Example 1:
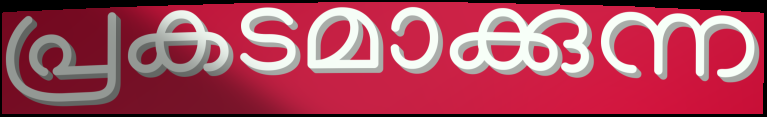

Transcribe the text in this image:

പ്രകടമാക്കുന്ന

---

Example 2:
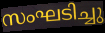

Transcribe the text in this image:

സംഘടിച്ചു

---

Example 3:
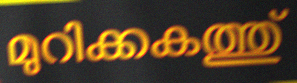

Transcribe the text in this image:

മുറിക്കകത്തു്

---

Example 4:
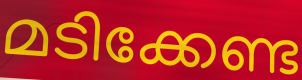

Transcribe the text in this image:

മടിക്കേണ്ട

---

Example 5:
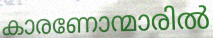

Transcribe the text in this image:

കാരണോന്മാരിൽ